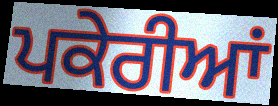
ਪਕੇਰੀਆਂ